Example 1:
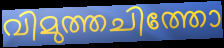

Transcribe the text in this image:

വിമുത്തചിത്തോ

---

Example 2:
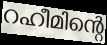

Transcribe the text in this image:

റഹീമിന്റെ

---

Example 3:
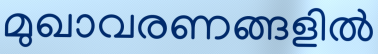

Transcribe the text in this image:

മുഖാവരണങ്ങളിൽ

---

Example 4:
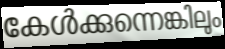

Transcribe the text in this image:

കേൾക്കുന്നെങ്കിലും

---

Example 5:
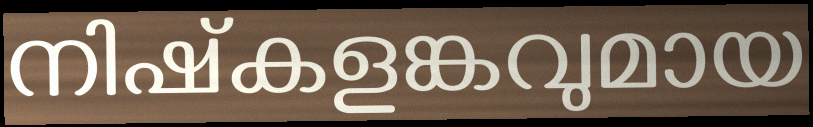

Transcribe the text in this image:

നിഷ്‌കളങ്കവുമായ